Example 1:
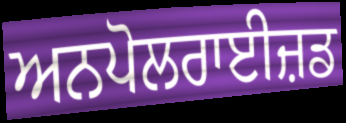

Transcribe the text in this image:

ਅਨਪੋਲਰਾਈਜ਼ਡ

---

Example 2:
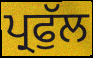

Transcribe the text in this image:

ਪ੍ਰਫੁੱਲ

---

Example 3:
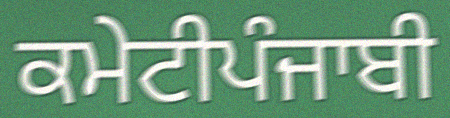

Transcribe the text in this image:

ਕਮੇਟੀਪੰਜਾਬੀ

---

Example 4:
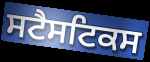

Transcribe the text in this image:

ਸਟੈਸਟਿਕਸ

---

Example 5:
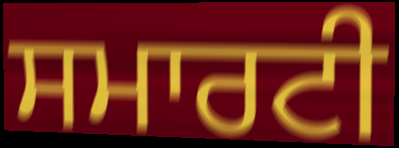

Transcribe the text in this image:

ਸਮਾਰਟੀ